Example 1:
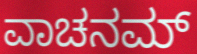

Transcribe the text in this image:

ವಾಚನಮ್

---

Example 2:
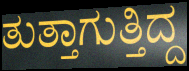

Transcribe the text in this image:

ತುತ್ತಾಗುತ್ತಿದ್ದ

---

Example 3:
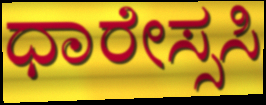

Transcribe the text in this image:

ಧಾರೇಸ್ಸಸಿ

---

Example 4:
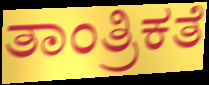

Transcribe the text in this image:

ತಾಂತ್ರಿಕತೆ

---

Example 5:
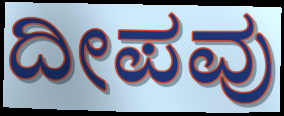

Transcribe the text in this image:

ದೀಪವು